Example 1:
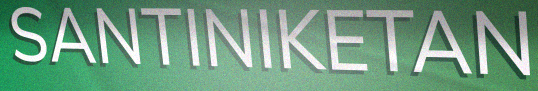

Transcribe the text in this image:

SANTINIKETAN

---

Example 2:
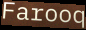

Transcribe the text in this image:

Farooq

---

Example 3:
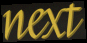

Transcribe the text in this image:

next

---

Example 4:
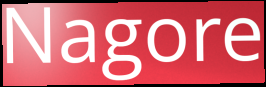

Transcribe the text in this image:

Nagore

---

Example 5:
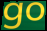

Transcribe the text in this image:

go